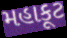
મહાકૂટ